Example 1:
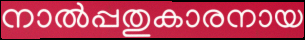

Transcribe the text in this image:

നാൽപ്പതുകാരനായ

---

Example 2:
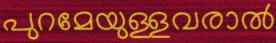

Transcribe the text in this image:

പുറമേയുള്ളവരാൽ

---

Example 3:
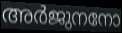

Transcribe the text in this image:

അർജുനനോ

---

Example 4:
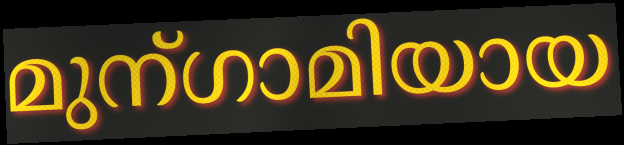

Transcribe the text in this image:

മുന്ഗാമിയായ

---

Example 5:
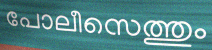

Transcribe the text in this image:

പോലീസെത്തും